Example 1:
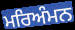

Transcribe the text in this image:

ਮਰਿਅੰਮਨ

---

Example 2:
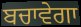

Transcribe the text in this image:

ਬਚਾਵੇਗਾ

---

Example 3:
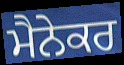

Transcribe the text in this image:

ਮੈਨੇਕਰ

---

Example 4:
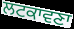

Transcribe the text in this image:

ਲਟਕਾਵਣਾ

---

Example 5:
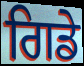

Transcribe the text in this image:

ਗਿਡੇ